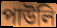
পাউলি